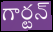
గార్టన్